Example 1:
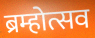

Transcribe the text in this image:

ब्रम्होत्सव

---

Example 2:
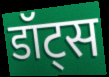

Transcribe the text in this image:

डॉट्स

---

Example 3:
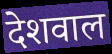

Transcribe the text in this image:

देशवाल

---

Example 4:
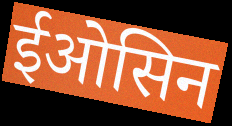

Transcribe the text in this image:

ईओसिन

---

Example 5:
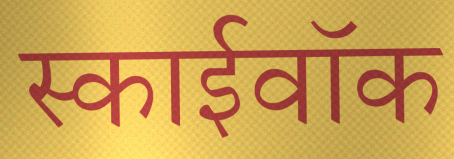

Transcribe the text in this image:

स्काईवॉक